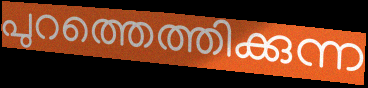
പുറത്തെത്തിക്കുന്ന